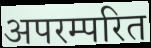
अपरम्परित